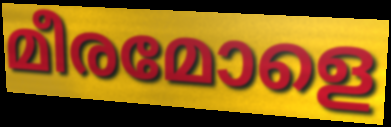
മീരമോളെ